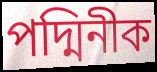
পদ্মিনীক